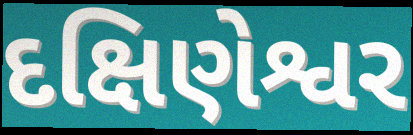
દક્ષિણેશ્વર